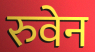
रुवेन